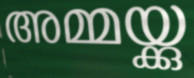
അമ്മയ്ക്കു